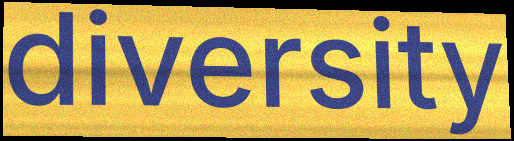
diversity